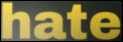
hate